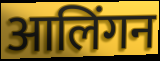
आलिंगन